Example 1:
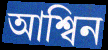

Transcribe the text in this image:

আশ্বিন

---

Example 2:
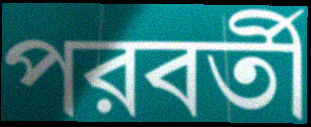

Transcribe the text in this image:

পরবর্তী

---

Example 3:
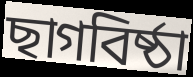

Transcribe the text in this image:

ছাগবিষ্ঠা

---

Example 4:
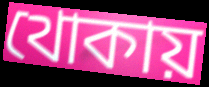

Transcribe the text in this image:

থোকায়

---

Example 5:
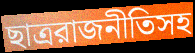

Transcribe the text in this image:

ছাত্ররাজনীতিসহ